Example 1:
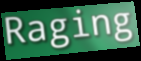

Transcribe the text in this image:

Raging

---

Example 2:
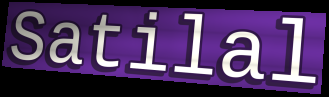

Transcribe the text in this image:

Satilal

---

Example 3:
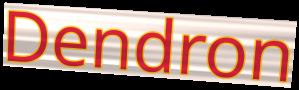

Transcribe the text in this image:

Dendron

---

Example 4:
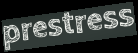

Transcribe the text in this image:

prestress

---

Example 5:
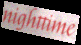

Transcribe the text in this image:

nighttime